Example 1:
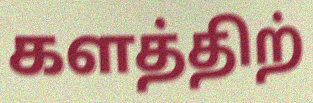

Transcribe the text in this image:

களத்திற்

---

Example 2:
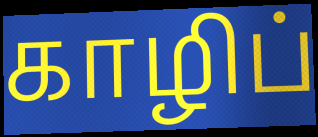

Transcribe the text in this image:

காழிப்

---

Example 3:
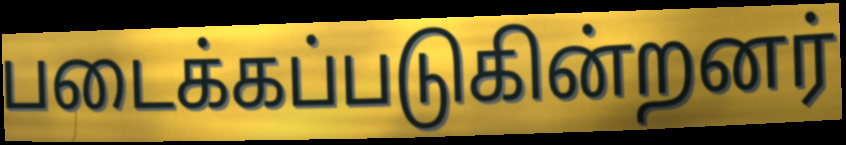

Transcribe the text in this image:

படைக்கப்படுகின்றனர்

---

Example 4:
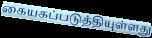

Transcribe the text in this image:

கையகப்படுத்தியுள்ளது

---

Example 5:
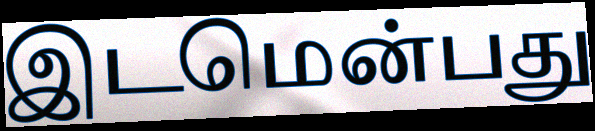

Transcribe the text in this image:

இடமென்பது